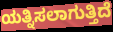
ಯತ್ನಿಸಲಾಗುತ್ತಿದೆ